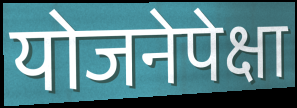
योजनेपेक्षा